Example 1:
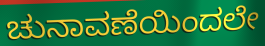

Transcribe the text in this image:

ಚುನಾವಣೆಯಿಂದಲೇ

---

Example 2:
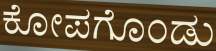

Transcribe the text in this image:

ಕೋಪಗೊಂಡು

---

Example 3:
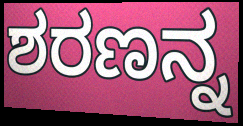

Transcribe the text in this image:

ಶರಣನ್ನ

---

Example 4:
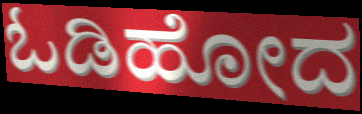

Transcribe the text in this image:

ಓಡಿಹೋದ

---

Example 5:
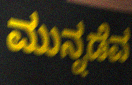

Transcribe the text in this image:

ಮುನ್ನಡೆವ